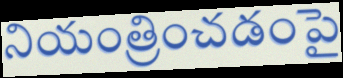
నియంత్రించడంపై